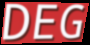
DEG